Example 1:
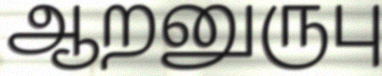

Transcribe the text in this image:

ஆறனுருபு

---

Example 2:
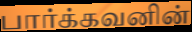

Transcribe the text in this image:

பார்க்கவனின்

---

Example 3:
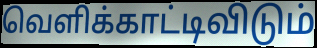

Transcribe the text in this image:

வெளிக்காட்டிவிடும்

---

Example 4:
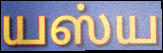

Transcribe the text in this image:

யஸ்ய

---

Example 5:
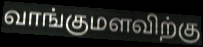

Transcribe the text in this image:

வாங்குமளவிற்கு